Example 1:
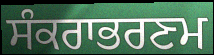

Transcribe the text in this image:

ਸੰਕਰਾਭਰਣਮ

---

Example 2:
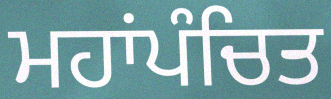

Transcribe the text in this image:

ਮਹਾਂਪੰਚਿਤ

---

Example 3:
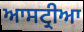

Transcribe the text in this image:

ਆਸਟ੍ਰੀਆ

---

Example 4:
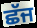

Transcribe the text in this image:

ਛੱਜ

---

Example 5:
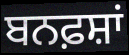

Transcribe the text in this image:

ਬਨਫ਼ਸ਼ਾਂ